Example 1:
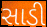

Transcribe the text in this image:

સાડી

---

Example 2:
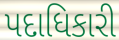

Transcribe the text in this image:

પદાધિકારી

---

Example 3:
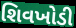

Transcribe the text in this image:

શિવખોડી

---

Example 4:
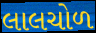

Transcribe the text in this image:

લાલચોળ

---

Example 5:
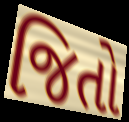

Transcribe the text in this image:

જિતો